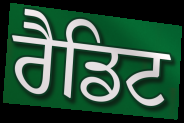
ਰੈਡਿਟ